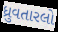
ધ્રુવતારલો